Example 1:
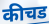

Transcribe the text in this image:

कीचड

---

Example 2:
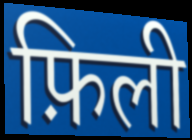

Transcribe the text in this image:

फ़िली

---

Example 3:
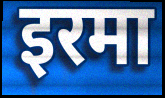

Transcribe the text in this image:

इरमा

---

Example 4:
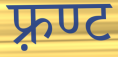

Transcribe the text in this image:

फ़्रण्ट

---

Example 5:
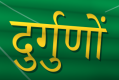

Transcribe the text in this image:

दुर्गुणों